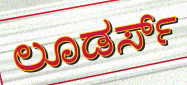
ಲೂಡರ್ಸ್